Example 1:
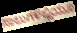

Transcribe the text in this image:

ಸಾಲುಗಳಲ್ಲಿಯೂ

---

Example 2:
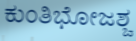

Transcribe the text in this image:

ಕುಂತಿಭೋಜಶ್ಚ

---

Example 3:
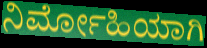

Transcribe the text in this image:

ನಿರ್ಮೋಹಿಯಾಗಿ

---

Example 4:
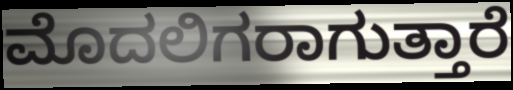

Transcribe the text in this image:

ಮೊದಲಿಗರಾಗುತ್ತಾರೆ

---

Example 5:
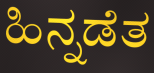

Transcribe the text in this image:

ಹಿನ್ನಡೆತ